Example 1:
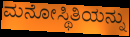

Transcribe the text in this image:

ಮನೋಸ್ಥಿತಿಯನ್ನು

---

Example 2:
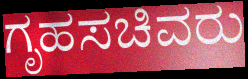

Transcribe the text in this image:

ಗೃಹಸಚಿವರು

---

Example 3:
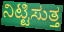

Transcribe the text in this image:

ನಿಟ್ಟಿಸುತ್ತ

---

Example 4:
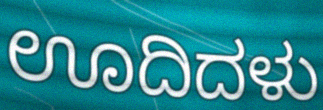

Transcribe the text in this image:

ಊದಿದಳು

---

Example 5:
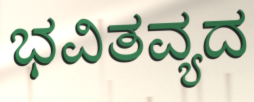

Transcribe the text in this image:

ಭವಿತವ್ಯದ